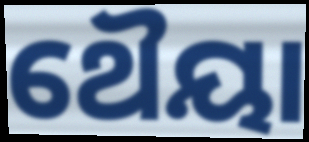
ଥୈୟା